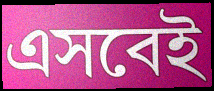
এসবেই